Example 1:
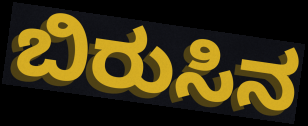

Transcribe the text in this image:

ಬಿರುಸಿನ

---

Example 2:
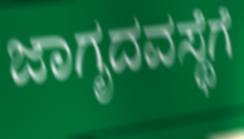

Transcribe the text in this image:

ಜಾಗೃದವಸ್ಥೆಗೆ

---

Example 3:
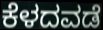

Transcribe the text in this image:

ಕೆಳದವಡೆ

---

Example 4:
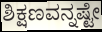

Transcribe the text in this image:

ಶಿಕ್ಷಣವನ್ನಷ್ಟೇ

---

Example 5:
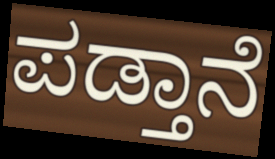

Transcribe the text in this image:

ಪಡ್ತಾನೆ